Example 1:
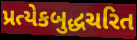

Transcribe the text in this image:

પ્રત્યેકબુદ્ધચરિત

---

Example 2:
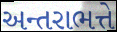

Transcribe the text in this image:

અન્તરાભત્તે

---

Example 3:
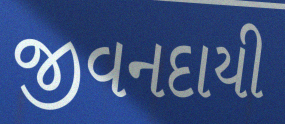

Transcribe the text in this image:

જીવનદાયી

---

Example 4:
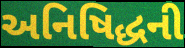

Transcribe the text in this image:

અનિષિદ્ધની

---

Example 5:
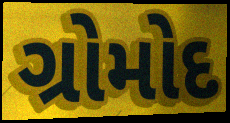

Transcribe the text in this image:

ગ્રોમોદ